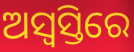
ଅସ୍ୱସ୍ତିରେ